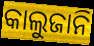
କାଲୁଜାନି